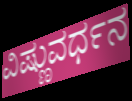
ವಿಷ್ಣುವರ್ಧನ